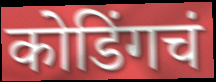
कोडिंगचं